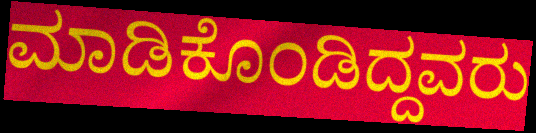
ಮಾಡಿಕೊಂಡಿದ್ದವರು